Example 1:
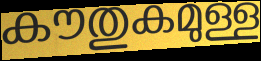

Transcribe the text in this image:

കൗതുകമുള്ള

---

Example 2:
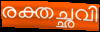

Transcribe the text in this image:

രക്തച്ഛവി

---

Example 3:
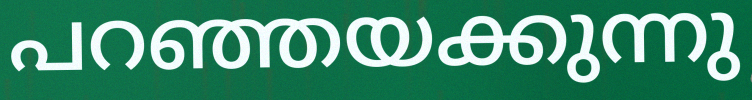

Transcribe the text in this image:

പറഞ്ഞയക്കുന്നു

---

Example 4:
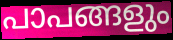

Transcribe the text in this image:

പാപങ്ങളും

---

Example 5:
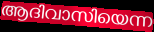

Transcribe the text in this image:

ആദിവാസിയെന്ന